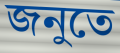
জনুতে